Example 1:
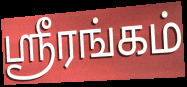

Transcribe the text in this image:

ஸ்ரீரங்கம்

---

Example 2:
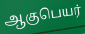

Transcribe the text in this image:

ஆகுபெயர்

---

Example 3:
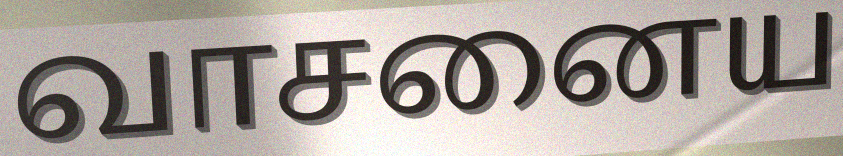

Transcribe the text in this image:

வாசனைய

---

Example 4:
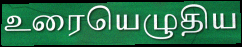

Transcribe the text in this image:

உரையெழுதிய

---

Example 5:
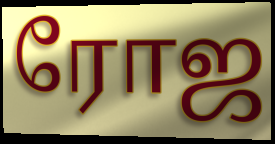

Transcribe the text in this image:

ரோஜ